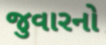
જુવારનો